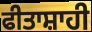
ਫੀਤਾਸ਼ਾਹੀ